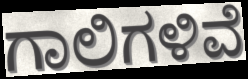
ಗಾಲಿಗಳಿವೆ